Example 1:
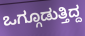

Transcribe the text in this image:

ಒಗ್ಗೂಡುತ್ತಿದ್ದ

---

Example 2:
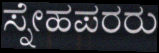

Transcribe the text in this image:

ಸ್ನೇಹಪರರು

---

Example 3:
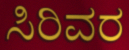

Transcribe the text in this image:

ಸಿರಿವರ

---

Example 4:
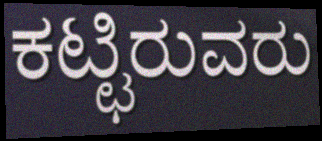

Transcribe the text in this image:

ಕಟ್ಟಿರುವರು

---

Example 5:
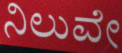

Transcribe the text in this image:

ನಿಲುವೇ